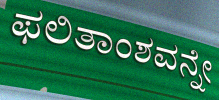
ಫಲಿತಾಂಶವನ್ನೇ